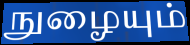
நுழையும்